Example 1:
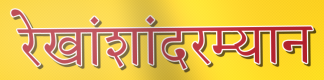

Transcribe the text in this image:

रेखांशांदरम्यान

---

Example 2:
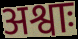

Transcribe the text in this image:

अश्वाः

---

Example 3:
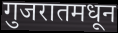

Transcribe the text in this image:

गुजरातमधून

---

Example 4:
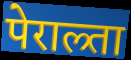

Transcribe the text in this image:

पेराल्ता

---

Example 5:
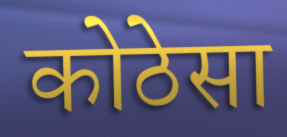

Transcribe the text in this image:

कोठेसा